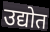
उद्योत